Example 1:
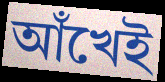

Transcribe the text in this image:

আঁখেই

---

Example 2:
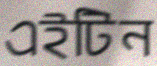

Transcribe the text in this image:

এইটিন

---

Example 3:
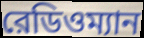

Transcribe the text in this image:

রেডিওম্যান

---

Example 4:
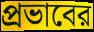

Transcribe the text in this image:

প্রভাবের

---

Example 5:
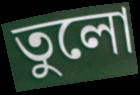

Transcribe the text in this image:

তুলো